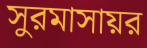
সুরমাসায়র